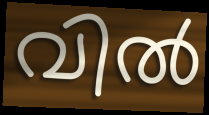
വിൽ